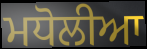
ਮਧੋਲੀਆ